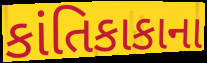
કાંતિકાકાના